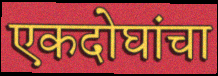
एकदोघांचा